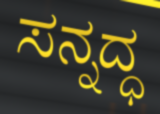
ಸನ್ನದ್ಧ